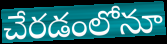
చేరడంలోనూ